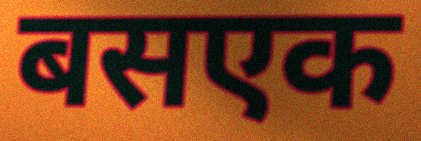
बसएक